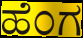
ಹೆಂಗ